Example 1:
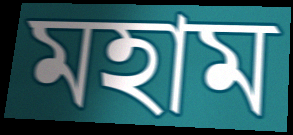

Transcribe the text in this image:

মহাম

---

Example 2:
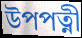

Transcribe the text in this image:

উপপত্নী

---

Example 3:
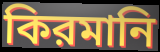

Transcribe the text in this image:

কিরমানি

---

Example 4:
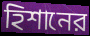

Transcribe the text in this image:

হিশানের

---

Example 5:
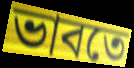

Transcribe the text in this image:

ভাবতে